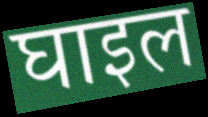
घाइल